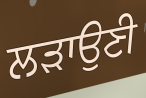
ਲੜਾਉਣੀ